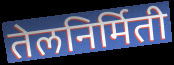
तेलनिर्मिती